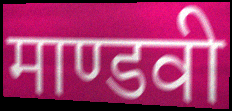
माण्डवी